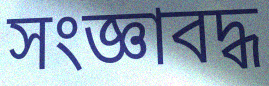
সংজ্ঞাবদ্ধ